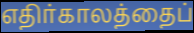
எதிர்காலத்தைப்